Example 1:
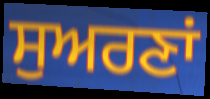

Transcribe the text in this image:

ਸੁਅਰਣਾਂ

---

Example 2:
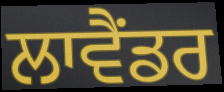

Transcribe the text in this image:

ਲਾਵੈਂਡਰ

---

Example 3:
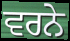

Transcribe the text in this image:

ਵਰਨੇ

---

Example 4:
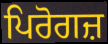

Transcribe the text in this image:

ਪਿਰੋਗਜ਼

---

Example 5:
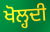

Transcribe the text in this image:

ਖੋਲ੍ਹਦੀ